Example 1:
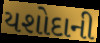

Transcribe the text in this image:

યશોદાની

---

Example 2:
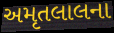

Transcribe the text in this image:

અમૃતલાલના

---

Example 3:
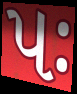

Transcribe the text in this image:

પઃ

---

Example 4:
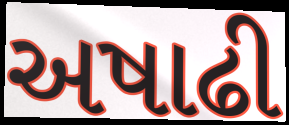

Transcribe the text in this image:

અષાઢી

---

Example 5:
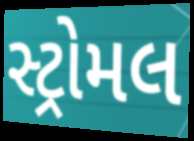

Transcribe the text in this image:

સ્ટ્રોમલ